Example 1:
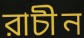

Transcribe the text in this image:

রাচীন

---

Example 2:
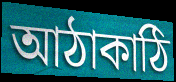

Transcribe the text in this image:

আঠাকাঠি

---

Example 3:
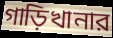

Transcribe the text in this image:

গাড়িখানার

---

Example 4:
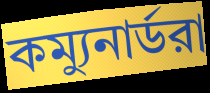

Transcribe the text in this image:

কম্যুনার্ডরা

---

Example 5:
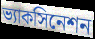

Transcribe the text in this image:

ভ্যাকসিনেশন